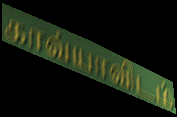
காவ்யாவிடம்